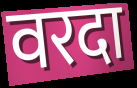
वरदा